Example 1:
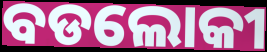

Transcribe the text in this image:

ବଡଲୋକୀ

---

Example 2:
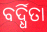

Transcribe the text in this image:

ବର୍ଦ୍ଧିତା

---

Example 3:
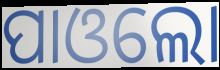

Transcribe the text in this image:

ପାଓଲୋ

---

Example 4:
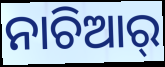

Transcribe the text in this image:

ନାଚିଆର୍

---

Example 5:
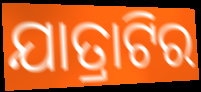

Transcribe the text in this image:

ଯାତ୍ରାଟିର